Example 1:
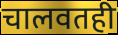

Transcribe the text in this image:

चालवतही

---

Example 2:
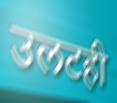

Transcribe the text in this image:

उलटही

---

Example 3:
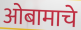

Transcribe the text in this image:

ओबामाचे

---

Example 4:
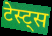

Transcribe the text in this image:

टेस्ट्स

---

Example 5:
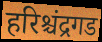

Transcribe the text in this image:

हरिश्चंद्रगड